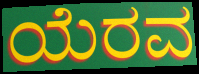
ಯೆರವ